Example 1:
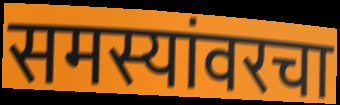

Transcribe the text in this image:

समस्यांवरचा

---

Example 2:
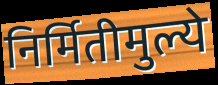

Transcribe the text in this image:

निर्मितीमुल्ये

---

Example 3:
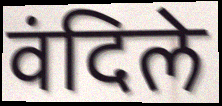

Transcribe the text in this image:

वंदिले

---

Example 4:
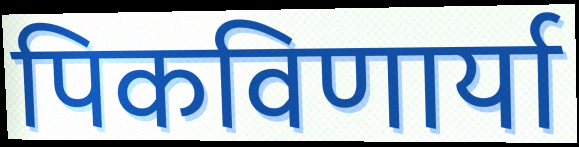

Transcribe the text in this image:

पिकविणार्या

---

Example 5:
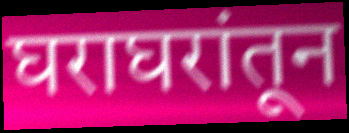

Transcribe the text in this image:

घराघरांतून